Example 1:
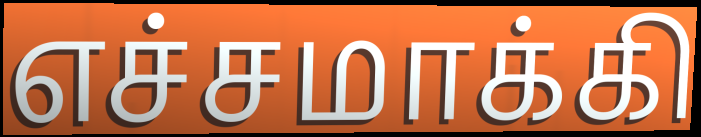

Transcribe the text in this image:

எச்சமாக்கி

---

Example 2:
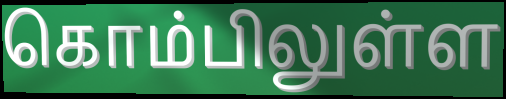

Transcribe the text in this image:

கொம்பிலுள்ள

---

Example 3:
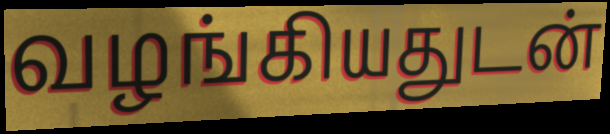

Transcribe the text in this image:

வழங்கியதுடன்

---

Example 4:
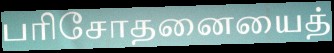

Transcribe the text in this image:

பரிசோதனையைத்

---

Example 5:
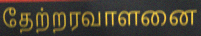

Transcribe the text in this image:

தேற்றரவாளனை